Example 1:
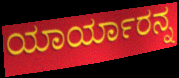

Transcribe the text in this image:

ಯಾರ್ಯಾರನ್ನ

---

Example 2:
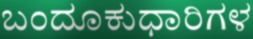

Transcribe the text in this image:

ಬಂದೂಕುಧಾರಿಗಳ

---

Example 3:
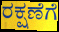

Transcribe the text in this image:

ರಕ್ಷಣೆಗೆ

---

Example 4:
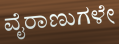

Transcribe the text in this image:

ವೈರಾಣುಗಳೇ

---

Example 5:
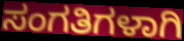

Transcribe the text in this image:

ಸಂಗತಿಗಳಾಗಿ